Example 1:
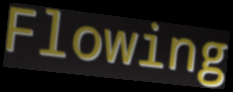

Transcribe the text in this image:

Flowing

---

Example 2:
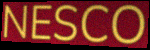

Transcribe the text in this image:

NESCO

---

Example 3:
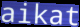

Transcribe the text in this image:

aikat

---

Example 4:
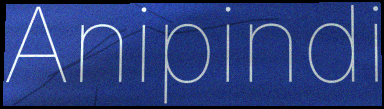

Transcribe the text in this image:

Anipindi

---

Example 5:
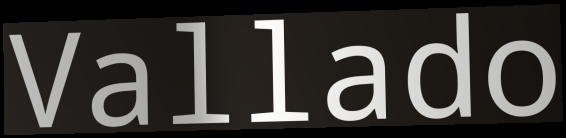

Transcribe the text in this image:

Vallado